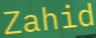
Zahid